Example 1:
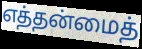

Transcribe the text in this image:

எத்தன்மைத்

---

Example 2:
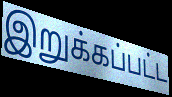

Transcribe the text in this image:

இறுக்கப்பட்ட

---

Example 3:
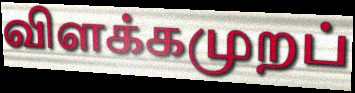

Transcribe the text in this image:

விளக்கமுறப்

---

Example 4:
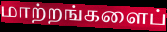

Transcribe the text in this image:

மாற்றங்களைப்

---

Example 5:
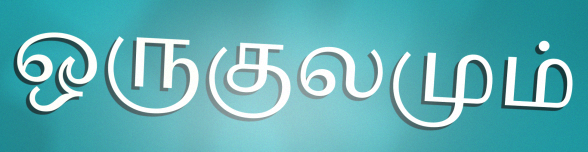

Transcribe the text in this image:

ஒருகுலமும்